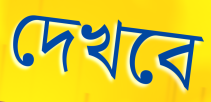
দেখবে